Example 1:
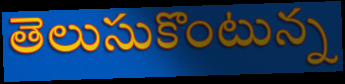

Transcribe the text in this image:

తెలుసుకొంటున్న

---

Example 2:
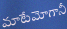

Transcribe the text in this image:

మాటేమోగానీ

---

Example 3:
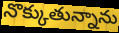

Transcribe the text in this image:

నొక్కుతున్నాను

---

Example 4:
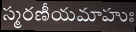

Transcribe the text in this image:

స్మరణీయమాహుః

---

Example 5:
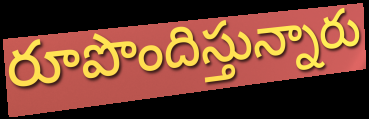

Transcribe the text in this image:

రూపొందిస్తున్నారు